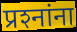
प्रश्नांना